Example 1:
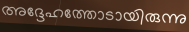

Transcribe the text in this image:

അദ്ദേഹത്തോടായിരുന്നു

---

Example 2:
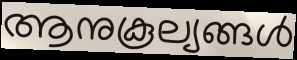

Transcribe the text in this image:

ആനുകൂല്യങ്ങൾ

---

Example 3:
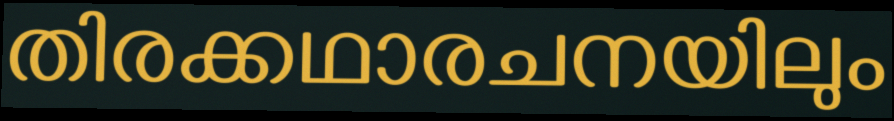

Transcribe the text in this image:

തിരക്കഥാരചനയിലും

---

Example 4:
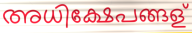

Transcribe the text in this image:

അധിക്ഷേപങ്ങള്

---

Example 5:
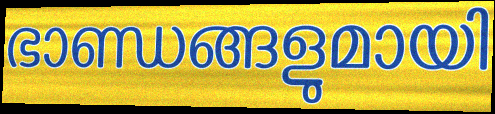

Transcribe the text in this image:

ഭാണ്ഡങ്ങളുമായി